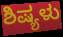
ಶಿಷ್ಯಳು